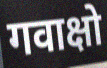
गवाक्षो